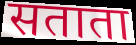
सताता